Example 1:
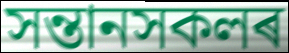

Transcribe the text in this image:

সন্তানসকলৰ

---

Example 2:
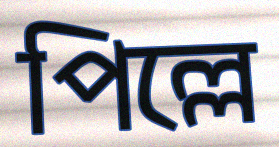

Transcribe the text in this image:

পিল্লে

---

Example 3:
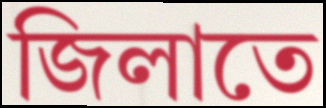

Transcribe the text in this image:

জিলাতে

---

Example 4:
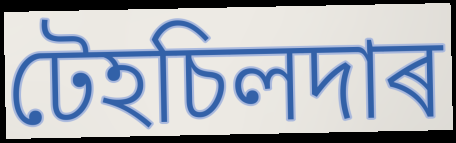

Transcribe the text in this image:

টেহচিলদাৰ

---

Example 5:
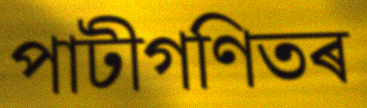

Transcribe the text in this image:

পাটীগণিতৰ